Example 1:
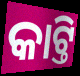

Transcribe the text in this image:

କାଟ୍ତି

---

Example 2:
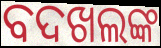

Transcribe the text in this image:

ବଦଖଲଙ୍କ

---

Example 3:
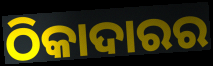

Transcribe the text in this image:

ଠିକାଦାରର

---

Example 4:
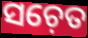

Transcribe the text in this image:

ସଚ଼େତ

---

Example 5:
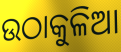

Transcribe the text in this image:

ଉଠାକୁଳିଆ